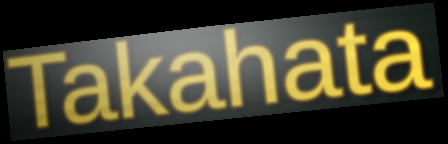
Takahata